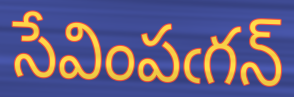
సేవింపఁగన్